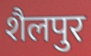
शैलपुर